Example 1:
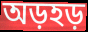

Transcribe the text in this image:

অড়হড়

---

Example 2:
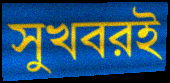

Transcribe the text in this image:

সুখবরই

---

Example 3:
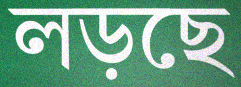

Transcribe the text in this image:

লড়ছে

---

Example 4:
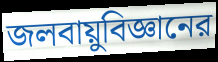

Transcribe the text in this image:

জলবায়ুবিজ্ঞানের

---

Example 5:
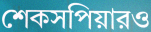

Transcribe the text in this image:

শেকসপিয়ারও